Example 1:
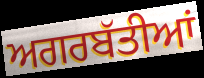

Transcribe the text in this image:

ਅਗਰਬੱਤੀਆਂ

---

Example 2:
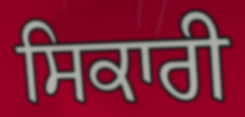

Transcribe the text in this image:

ਸਿਕਾਰੀ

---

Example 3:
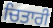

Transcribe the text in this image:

ਚਿਤਾਰੀ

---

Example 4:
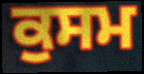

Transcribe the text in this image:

ਕੁਸਮ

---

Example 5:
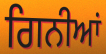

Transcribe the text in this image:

ਗਿਨੀਆਂ